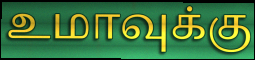
உமாவுக்கு